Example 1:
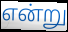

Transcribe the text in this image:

என்று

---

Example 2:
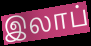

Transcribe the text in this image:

இலாப்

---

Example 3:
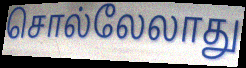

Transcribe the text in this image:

சொல்லேலாது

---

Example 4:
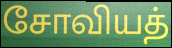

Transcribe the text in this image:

சோவியத்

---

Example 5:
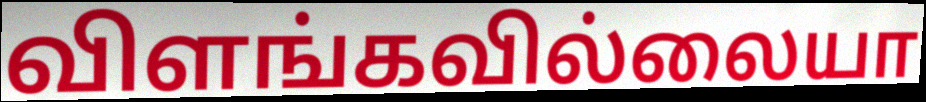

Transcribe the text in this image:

விளங்கவில்லையா